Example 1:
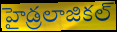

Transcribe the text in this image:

హైడ్రలాజికల్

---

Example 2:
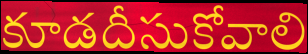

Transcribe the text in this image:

కూడదీసుకోవాలి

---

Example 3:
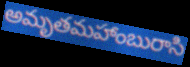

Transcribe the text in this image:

అమృతమహాంబురాసి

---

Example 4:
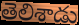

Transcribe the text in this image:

తెలిశాడు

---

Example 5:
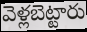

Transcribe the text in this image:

వెళ్లబెట్టారు